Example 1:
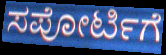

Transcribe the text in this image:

ಸಪೋರ್ಟಿಗೆ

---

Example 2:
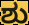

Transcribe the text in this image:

ಶು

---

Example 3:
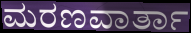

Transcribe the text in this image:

ಮರಣವಾರ್ತಾ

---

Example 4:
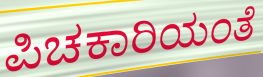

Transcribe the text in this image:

ಪಿಚಕಾರಿಯಂತೆ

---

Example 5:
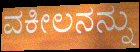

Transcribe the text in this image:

ವಕೀಲನನ್ನು